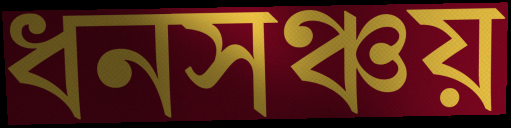
ধনসঞ্চয়